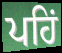
ਪਹਿਂ